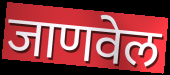
जाणवेल